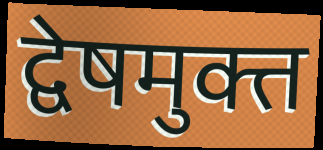
द्वेषमुक्त